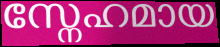
സ്നേഹമായ